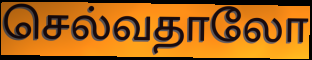
செல்வதாலோ